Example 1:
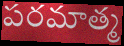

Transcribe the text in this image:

పరమాత్మ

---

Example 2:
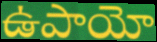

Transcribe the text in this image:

ఉపాయో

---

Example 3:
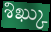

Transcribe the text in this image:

శిఖ్కు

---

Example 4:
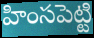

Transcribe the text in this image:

హింసపెట్టి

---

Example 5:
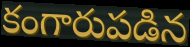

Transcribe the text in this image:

కంగారుపడిన